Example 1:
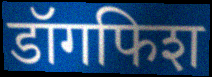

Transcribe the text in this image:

डॉगफिश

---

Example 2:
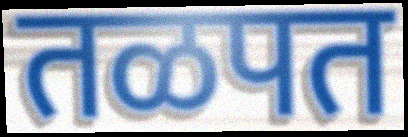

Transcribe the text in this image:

तळपत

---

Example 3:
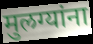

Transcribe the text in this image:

मुलग्यांना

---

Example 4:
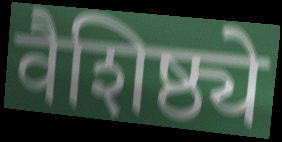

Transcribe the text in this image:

वैशिष्ठ्ये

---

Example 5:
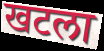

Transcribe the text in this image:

खटला